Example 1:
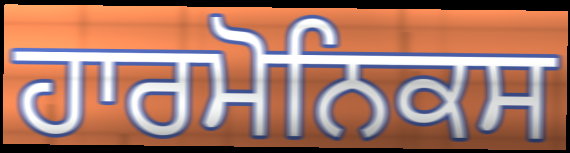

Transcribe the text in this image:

ਹਾਰਮੋਨਿਕਸ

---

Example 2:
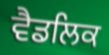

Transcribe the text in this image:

ਵੈਡਲਿਕ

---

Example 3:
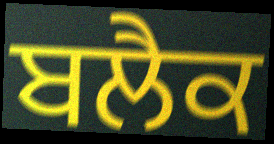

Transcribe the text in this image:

ਬਲੈਕ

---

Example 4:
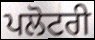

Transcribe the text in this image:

ਪਲੋਟਰੀ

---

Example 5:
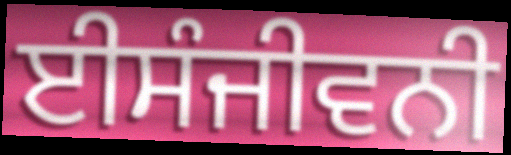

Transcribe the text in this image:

ਈਸੰਜੀਵਨੀ